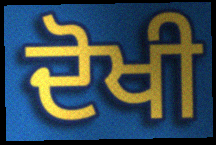
ਦੋਖੀ